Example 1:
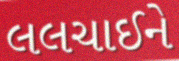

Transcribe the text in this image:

લલચાઈને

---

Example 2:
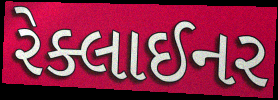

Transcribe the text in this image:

રેક્લાઈનર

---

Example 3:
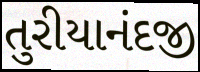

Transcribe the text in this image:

તુરીયાનંદજી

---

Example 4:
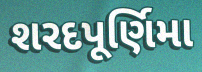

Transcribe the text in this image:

શરદપૂર્ણિમા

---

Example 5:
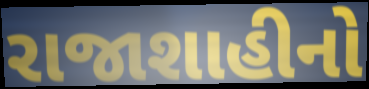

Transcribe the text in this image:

રાજાશાહીનો